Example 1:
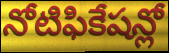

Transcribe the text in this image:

నోటిఫికేషన్లో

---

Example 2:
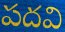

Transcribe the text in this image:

పదవి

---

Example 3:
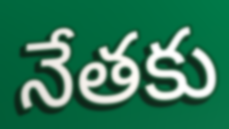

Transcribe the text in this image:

నేతకు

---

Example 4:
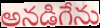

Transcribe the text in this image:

అనడిగేను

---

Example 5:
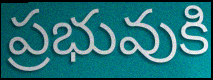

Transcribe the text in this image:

ప్రభువుకి